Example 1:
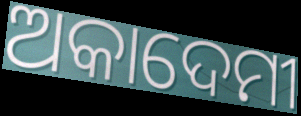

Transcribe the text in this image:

ଅକାଦେମୀ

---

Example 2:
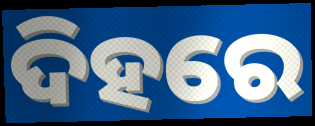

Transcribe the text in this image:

ଦିହରେ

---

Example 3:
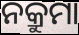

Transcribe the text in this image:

ନକ୍ରୁମା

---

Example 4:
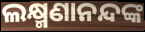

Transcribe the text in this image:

ଲକ୍ଷ୍ମଣାନନ୍ଦଙ୍କ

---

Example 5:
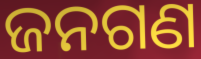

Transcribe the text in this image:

ଜନଗଣ